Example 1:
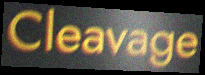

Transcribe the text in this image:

Cleavage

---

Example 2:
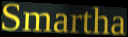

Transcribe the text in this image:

Smartha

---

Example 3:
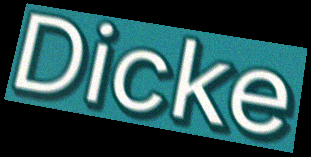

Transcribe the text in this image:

Dicke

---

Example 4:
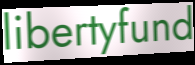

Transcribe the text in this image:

libertyfund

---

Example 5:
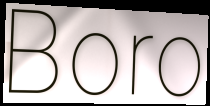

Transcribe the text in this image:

Boro